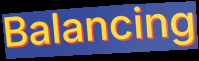
Balancing